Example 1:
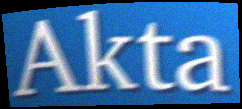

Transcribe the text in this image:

Akta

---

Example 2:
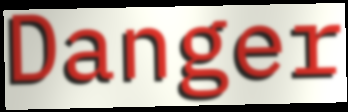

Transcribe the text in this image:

Danger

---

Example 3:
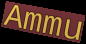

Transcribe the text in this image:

Ammu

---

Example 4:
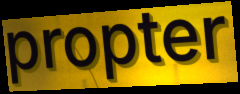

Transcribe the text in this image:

propter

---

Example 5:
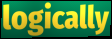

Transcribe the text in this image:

logically